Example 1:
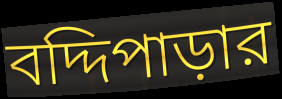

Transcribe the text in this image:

বদ্দিপাড়ার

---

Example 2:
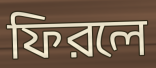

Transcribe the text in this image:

ফিরলে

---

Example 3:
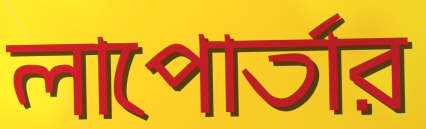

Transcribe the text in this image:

লাপোর্তার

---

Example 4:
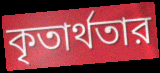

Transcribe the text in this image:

কৃতার্থতার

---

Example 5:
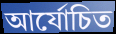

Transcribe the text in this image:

আর্যোচিত